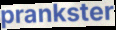
prankster